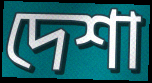
দেশা